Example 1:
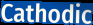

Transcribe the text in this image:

Cathodic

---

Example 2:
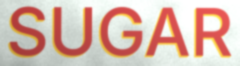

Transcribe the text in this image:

SUGAR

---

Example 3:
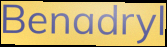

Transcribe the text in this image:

Benadryl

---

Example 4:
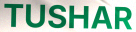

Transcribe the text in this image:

TUSHAR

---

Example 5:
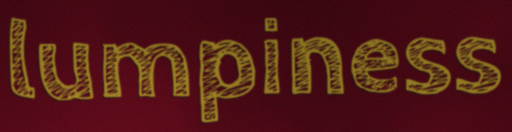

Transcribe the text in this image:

lumpiness